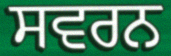
ਸਵਰਨ